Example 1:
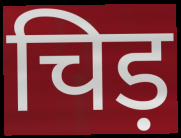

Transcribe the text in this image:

चिड़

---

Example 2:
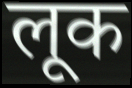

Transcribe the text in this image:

लूक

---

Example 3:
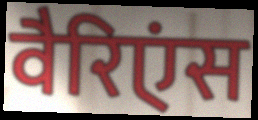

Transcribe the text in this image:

वैरिएंस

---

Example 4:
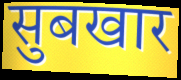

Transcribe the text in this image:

सुबखार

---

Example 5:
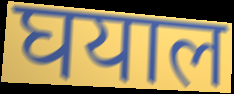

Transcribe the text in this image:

घयाल